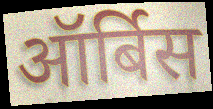
ऑर्बिस